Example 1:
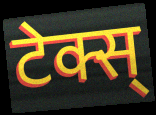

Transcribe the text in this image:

टेक्स्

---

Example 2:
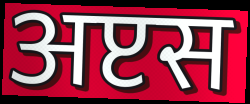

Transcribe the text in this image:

अप्टस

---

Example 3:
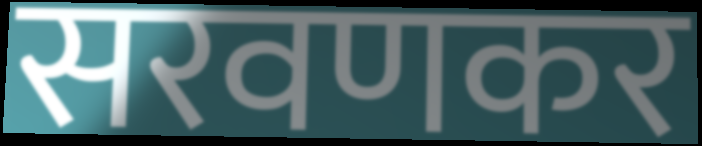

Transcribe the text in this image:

सरवणकर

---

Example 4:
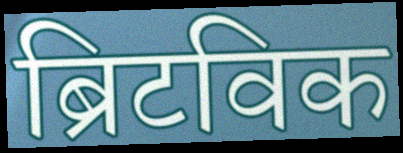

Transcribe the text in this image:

ब्रिटविक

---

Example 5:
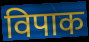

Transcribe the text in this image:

विपाक